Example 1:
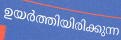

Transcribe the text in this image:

ഉയർത്തിയിരിക്കുന്ന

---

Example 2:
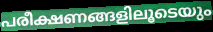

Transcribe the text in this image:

പരീക്ഷണങ്ങളിലൂടെയും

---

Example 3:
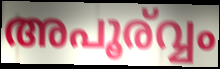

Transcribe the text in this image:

അപൂര്വ്വം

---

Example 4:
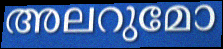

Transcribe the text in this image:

അലറുമോ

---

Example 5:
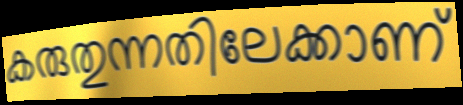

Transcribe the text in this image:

കരുതുന്നതിലേക്കാണ്